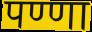
पण्णा